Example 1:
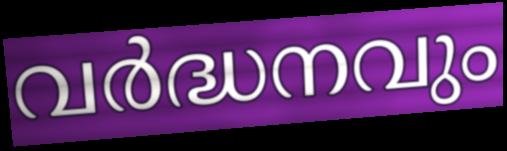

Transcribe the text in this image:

വർദ്ധനവും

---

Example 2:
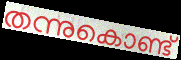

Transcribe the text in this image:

തന്നുകൊണ്ട്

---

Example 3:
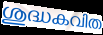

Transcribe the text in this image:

ശുദ്ധകവിത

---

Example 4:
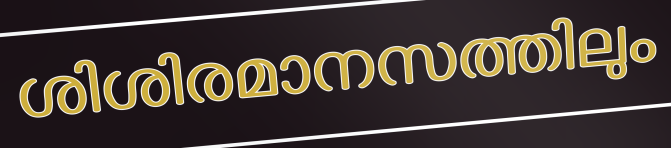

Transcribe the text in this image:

ശിശിരമാനസത്തിലും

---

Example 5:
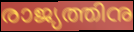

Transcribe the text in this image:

രാജ്യത്തിനു